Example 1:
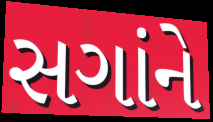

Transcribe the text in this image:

સગાંને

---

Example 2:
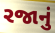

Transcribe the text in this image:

રજાનું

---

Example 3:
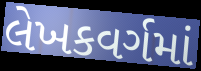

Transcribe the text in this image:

લેખકવર્ગમાં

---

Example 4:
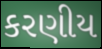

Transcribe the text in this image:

કરણીય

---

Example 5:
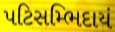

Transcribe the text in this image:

પટિસમ્ભિદાયં